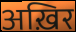
अख़िर